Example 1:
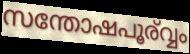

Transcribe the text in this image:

സന്തോഷപൂര്വ്വം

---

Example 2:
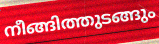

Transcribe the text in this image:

നീങ്ങിത്തുടങ്ങും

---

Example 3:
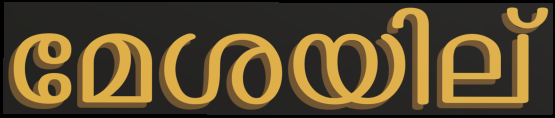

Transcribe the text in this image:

മേശയില്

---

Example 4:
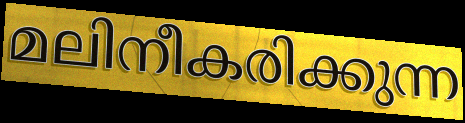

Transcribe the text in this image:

മലിനീകരിക്കുന്ന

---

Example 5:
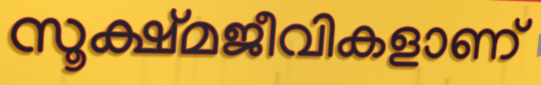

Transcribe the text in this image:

സൂക്ഷ്മജീവികളാണ്